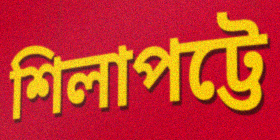
শিলাপট্টে